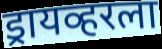
ड्रायव्हरला